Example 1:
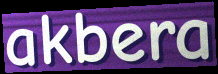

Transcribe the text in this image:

akbera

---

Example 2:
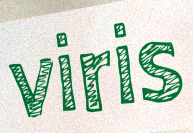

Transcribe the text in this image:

viris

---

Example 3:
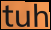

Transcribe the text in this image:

tuh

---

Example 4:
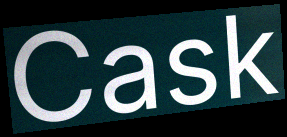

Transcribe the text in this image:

Cask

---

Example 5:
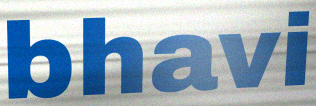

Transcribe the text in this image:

bhavi